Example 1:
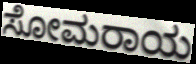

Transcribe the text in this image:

ಸೋಮರಾಯ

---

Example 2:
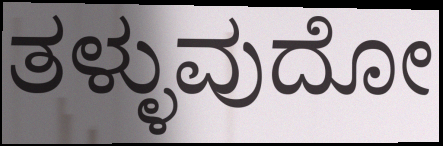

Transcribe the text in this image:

ತಳ್ಳುವುದೋ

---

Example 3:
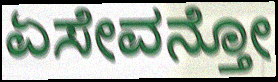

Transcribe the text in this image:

ಏಸೇವನ್ತೋ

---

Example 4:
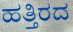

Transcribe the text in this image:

ಹತ್ತಿರದ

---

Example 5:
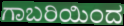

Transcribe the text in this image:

ಗಾಬರಿಯಿಂದ